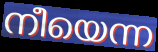
നീയെന്ന